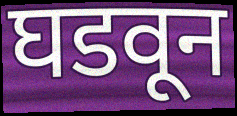
घडवून